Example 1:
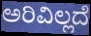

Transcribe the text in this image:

ಅರಿವಿಲ್ಲದೆ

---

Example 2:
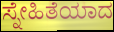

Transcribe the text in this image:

ಸ್ನೇಹಿತೆಯಾದ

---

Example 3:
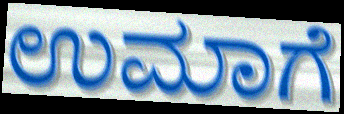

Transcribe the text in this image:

ಉಮಾಗೆ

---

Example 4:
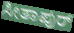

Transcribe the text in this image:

ಸೀತಾಪುರ್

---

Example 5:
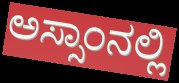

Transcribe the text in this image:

ಅಸ್ಸಾಂನಲ್ಲಿ